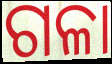
ଗଳା